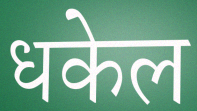
धकेल